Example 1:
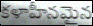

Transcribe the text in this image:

కళాహీనమైన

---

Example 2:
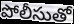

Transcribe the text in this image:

పోలీసుతో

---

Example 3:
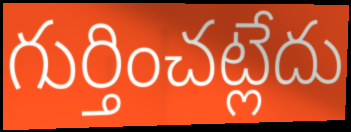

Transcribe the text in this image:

గుర్తించట్లేదు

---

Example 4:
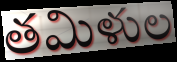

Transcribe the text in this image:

తమిళుల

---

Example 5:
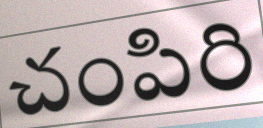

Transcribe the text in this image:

చంపిరి